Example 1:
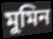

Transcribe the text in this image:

মুমিন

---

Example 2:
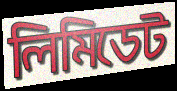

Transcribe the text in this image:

লিমিডেট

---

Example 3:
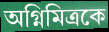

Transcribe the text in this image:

অগ্নিমিত্রকে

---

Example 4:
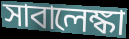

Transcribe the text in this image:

সাবালেঙ্কা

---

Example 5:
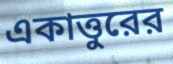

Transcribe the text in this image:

একাত্তুরের